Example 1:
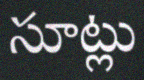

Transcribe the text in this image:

సూట్లు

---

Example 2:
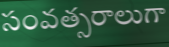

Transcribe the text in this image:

సంవత్సరాలుగా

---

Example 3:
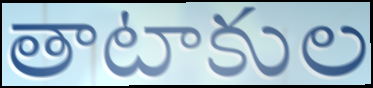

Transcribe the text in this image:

తాటాకుల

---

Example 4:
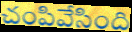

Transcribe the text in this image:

చంపివేసింది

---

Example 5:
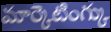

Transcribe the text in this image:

మార్కెటింగ్కు